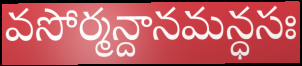
వసోర్మన్దానమన్ధసః